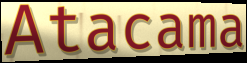
Atacama